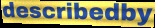
describedby